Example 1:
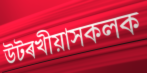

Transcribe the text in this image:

উটৰখীয়াসকলক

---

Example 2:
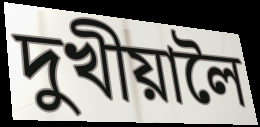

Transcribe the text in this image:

দুখীয়ালৈ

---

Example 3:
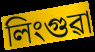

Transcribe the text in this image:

লিংগুৱা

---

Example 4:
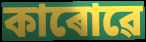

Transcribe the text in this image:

কাৰোৱে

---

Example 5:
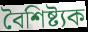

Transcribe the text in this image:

বৈশিষ্ট্যক